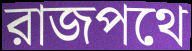
রাজপথে